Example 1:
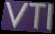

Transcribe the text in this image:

VTI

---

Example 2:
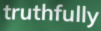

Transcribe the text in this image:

truthfully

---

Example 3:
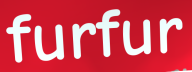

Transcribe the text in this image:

furfur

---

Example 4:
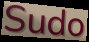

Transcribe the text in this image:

Sudo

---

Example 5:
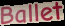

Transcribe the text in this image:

Ballet